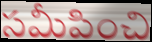
సమీపించి